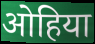
ओहिया